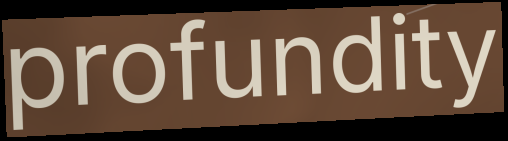
profundity